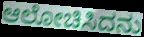
ಆಲೋಚಿಸಿದನು